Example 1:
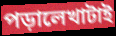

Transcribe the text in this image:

পড়ালেখাটাই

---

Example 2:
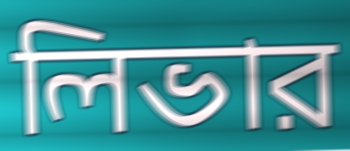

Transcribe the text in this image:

লিভার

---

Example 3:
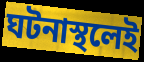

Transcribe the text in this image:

ঘটনাস্থলেই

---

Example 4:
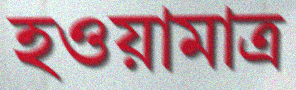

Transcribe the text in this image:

হওয়ামাত্র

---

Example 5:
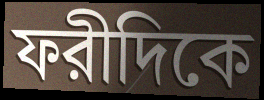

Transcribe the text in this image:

ফরীদিকে